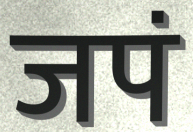
जपं